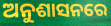
ଅନୁଶାସନରେ